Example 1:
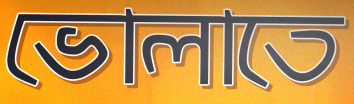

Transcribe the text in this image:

ভোলাতে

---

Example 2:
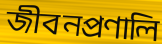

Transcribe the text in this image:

জীবনপ্রণালি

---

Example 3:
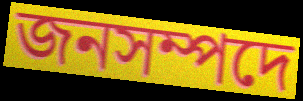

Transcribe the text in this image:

জনসম্পদে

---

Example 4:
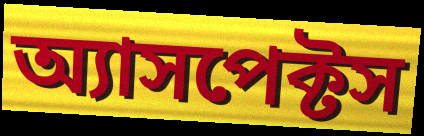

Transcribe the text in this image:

অ্যাসপেক্টস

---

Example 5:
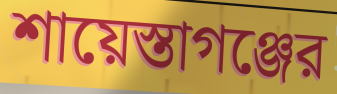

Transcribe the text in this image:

শায়েস্তাগঞ্জের